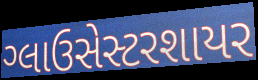
ગ્લાઉસેસ્ટરશાયર